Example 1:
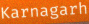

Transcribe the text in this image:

Karnagarh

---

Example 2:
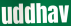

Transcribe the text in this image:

uddhav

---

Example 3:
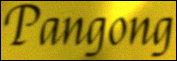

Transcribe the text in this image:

Pangong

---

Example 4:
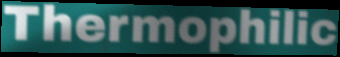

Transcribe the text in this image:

Thermophilic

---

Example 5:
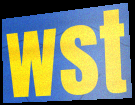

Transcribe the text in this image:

wst